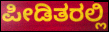
ಪೀಡಿತರಲ್ಲಿ